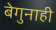
बेगुनाही